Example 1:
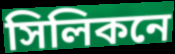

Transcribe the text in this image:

সিলিকনে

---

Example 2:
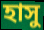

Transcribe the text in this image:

হাসু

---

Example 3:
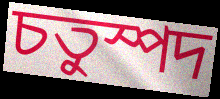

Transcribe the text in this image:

চতুস্পদ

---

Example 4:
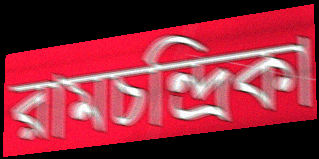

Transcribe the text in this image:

রামচন্দ্রিকা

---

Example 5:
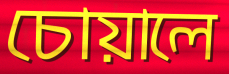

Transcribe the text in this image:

চোয়ালে